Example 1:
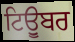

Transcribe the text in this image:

ਟਿਊੁਬਰ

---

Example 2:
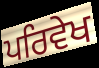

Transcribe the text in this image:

ਪਰਿਵੇਖ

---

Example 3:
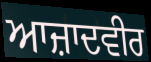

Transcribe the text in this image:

ਆਜ਼ਾਦਵੀਰ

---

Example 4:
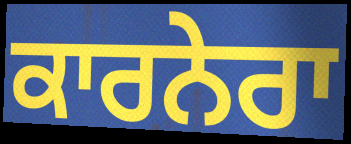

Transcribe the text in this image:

ਕਾਰਨੇਰਾ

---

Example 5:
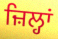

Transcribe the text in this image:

ਜ਼ਿਲ੍ਹਾਂ